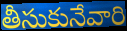
తీసుకునేవారి